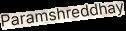
Paramshreddhay